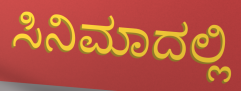
ಸಿನಿಮಾದಲ್ಲಿ